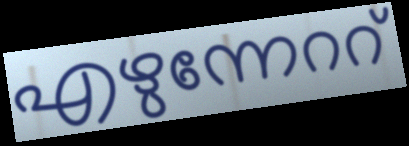
എഴുന്നേററ്